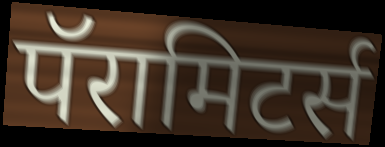
पॅरामिटर्स